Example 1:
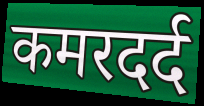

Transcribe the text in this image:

कमरदर्द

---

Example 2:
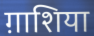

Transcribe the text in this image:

ग़ाशिया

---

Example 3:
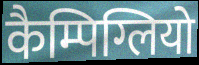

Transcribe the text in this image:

कैम्पिग्लियो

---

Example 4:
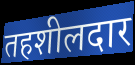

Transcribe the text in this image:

तहशीलदार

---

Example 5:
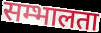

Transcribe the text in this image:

सम्भालता